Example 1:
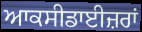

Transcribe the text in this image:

ਆਕਸੀਡਾਈਜ਼ਰਾਂ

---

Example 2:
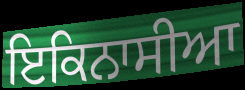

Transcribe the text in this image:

ਇਕਿਨਾਸੀਆ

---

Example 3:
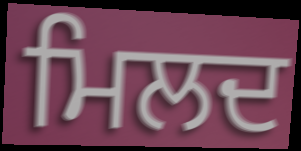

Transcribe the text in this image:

ਮਿਲਦ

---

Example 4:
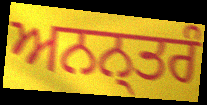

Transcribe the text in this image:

ਅਨਨ੍ਤਰੰ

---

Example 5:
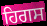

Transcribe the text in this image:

ਹਿਗਸ